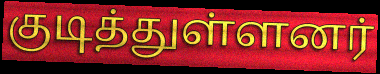
குடித்துள்ளனர்